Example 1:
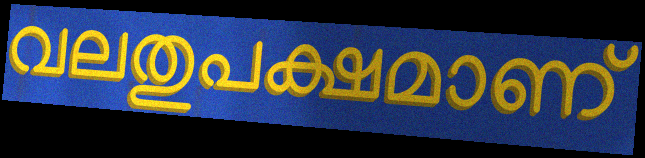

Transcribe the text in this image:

വലതുപക്ഷമാണ്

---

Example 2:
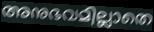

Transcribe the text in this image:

അനുഭവമില്ലാതെ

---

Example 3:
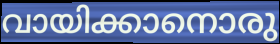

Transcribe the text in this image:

വായിക്കാനൊരു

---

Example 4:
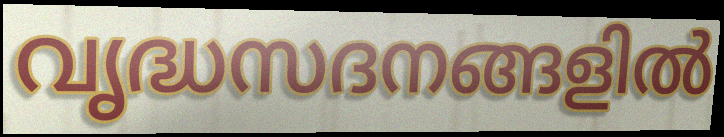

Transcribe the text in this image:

വൃദ്ധസദനങ്ങളിൽ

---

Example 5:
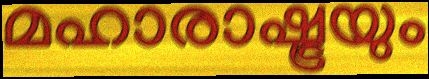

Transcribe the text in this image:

മഹാരാഷ്ട്രയും